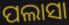
ପଲାସା